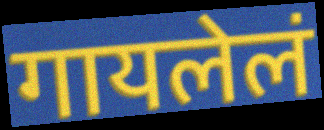
गायलेलं